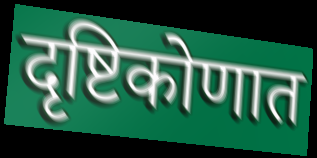
दृष्टिकोणात